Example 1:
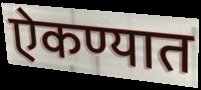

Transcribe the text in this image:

ऐकण्यात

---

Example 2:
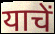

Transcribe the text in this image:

याचें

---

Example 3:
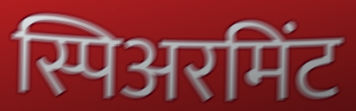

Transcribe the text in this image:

स्पिअरमिंट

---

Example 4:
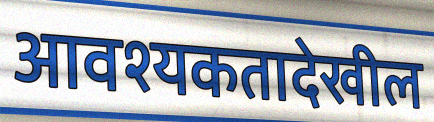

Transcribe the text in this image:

आवश्यकतादेखील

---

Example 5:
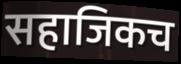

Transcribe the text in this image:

सहाजिकच